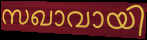
സഖാവായി